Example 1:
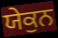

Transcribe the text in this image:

ਯੇਕੁਨ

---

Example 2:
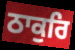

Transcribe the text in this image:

ਠਾਕੁਰਿ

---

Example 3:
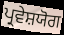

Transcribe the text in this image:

ਪ੍ਰਵੇਸ਼ਯੋਗ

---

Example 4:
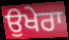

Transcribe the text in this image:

ਉਖੇਰਾ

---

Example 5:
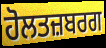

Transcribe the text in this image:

ਹੋਲਤਜ਼ਬਰਗ